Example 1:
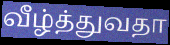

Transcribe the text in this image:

வீழ்த்துவதா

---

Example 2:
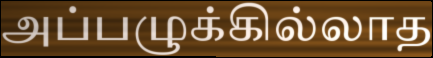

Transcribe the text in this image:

அப்பழுக்கில்லாத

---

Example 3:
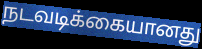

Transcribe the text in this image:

நடவடிக்கையானது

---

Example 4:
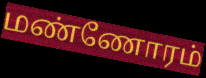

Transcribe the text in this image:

மண்ணோரம்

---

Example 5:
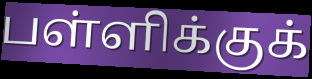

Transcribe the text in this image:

பள்ளிக்குக்